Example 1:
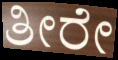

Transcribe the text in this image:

ತೀರೇ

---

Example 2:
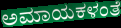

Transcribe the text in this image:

ಅಮಾಯಕಳಂತೆ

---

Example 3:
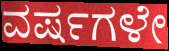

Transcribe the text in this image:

ವರ್ಷಗಳೇ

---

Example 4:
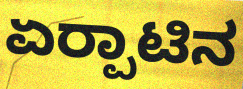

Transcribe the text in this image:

ಏರ‍್ಪಾಟಿನ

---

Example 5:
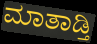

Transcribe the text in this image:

ಮಾತಾಡ್ತಿ